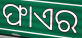
ଫାଏର